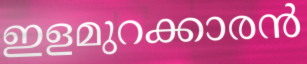
ഇളമുറക്കാരൻ